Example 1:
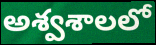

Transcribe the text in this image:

అశ్వశాలలో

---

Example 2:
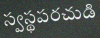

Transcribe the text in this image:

స్వస్థపరచుడి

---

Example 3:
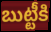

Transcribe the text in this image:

బుట్టీకి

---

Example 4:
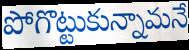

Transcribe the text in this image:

పోగొట్టుకున్నామనే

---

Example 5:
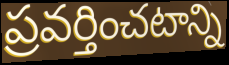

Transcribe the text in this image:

ప్రవర్తించటాన్ని